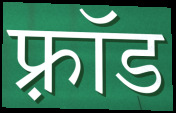
फ़्रॉड